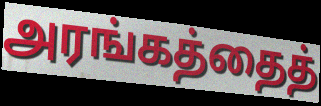
அரங்கத்தைத்